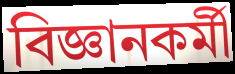
বিজ্ঞানকর্মী